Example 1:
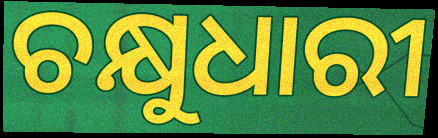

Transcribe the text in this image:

ଚକ୍ଷୁଧାରୀ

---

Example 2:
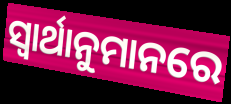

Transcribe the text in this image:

ସ୍ୱାର୍ଥାନୁମାନରେ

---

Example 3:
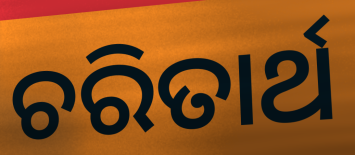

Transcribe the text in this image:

ଚରିତାର୍ଥ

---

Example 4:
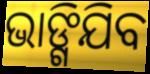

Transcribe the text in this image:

ଭାଙ୍ଗିଯିବ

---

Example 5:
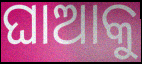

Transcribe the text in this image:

ଘାଆକୁ